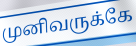
முனிவருக்கே